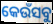
କେଉଁସବୁ